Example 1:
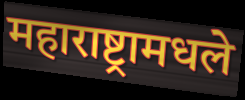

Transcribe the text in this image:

महाराष्ट्रामधले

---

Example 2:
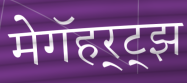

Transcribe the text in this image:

मेगॅहर्ट्‌झ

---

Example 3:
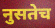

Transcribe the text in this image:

नुसतेच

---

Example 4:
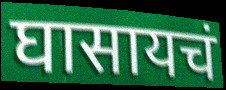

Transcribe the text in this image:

घासायचं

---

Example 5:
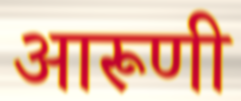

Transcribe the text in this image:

आरूणी